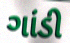
ગાંડી